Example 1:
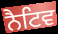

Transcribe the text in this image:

ਨੈਟਿਵ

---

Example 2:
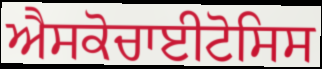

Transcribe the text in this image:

ਐਸਕੋਚਾਈਟੋਸਿਸ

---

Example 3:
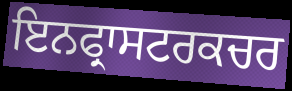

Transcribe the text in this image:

ਇਨਫ੍ਰਾਸਟਰਕਚਰ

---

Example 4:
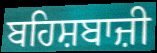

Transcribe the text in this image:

ਬਹਿਸ਼ਬਾਜ਼ੀ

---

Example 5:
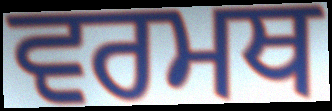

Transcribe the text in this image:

ਵਰਮਥ